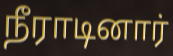
நீராடினார்